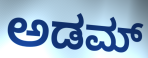
ಅಡಮ್